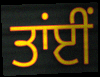
ਤਾਂਈਂ